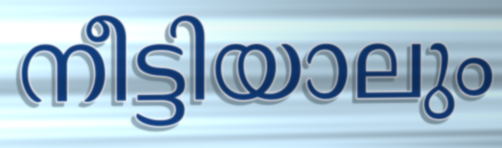
നീട്ടിയാലും